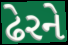
ઢેરને